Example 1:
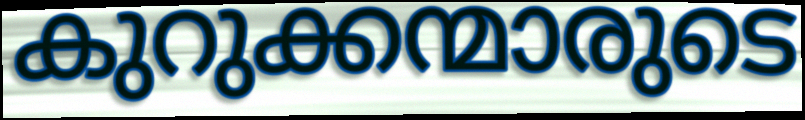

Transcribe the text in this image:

കുറുക്കന്മാരുടെ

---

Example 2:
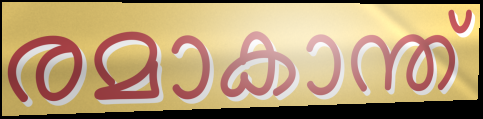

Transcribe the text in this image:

രമാകാന്ത്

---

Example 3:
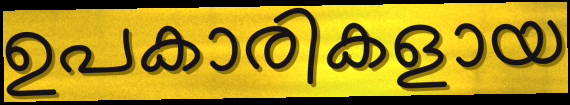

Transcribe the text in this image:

ഉപകാരികളായ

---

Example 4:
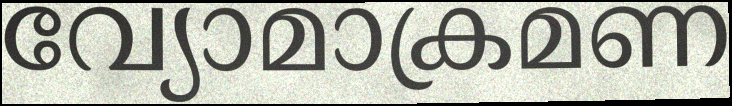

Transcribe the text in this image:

വ്യോമാക്രമണ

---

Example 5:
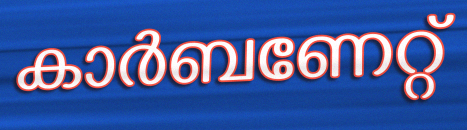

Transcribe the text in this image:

കാർബണേറ്റ്